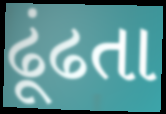
ઢૂંઢતા